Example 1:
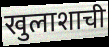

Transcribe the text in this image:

खुलाशाची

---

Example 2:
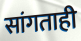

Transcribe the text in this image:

सांगताही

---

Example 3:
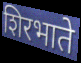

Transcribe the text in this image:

शिरभाते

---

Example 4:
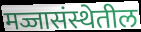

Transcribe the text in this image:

मज्जासंस्थेतील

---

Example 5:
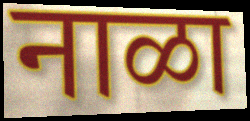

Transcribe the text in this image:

नाळा